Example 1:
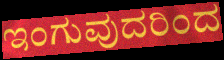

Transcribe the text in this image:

ಇಂಗುವುದರಿಂದ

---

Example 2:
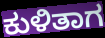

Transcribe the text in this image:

ಕುಳಿತಾಗ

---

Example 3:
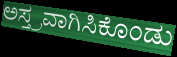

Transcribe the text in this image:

ಅಸ್ತ್ರವಾಗಿಸಿಕೊಂಡು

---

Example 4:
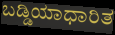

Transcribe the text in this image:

ಬಡ್ಡಿಯಾಧಾರಿತ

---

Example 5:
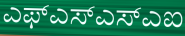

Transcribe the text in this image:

ಎಫ್ಎಸ್ಎಸ್ಎಐ